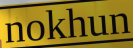
nokhun